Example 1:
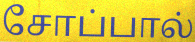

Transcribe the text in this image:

சோப்பால்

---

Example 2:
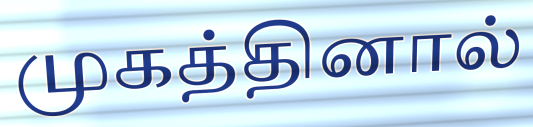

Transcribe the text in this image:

முகத்தினால்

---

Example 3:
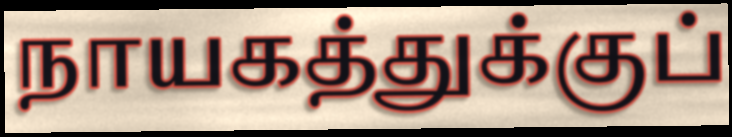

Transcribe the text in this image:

நாயகத்துக்குப்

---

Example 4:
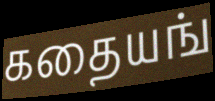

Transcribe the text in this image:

கதையங்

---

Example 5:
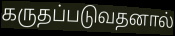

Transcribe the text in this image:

கருதப்படுவதனால்